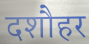
दशौहर